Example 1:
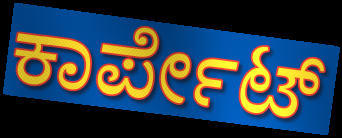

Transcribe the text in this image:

ಕಾರ್ಪೇಟ್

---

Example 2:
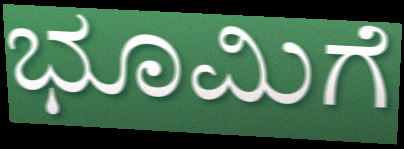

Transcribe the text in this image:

ಭೂಮಿಗೆ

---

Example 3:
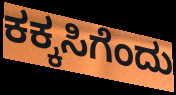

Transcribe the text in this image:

ಕಕ್ಕಸಿಗೆಂದು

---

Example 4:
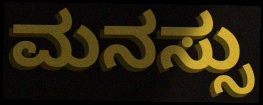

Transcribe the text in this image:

ಮನಸ್ಸು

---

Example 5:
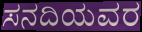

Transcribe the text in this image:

ಸನದಿಯವರ